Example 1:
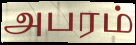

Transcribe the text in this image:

அபரம்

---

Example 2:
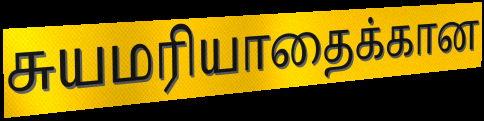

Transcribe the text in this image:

சுயமரியாதைக்கான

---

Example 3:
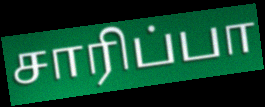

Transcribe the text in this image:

சாரிப்பா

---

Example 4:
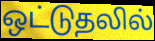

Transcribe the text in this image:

ஒட்டுதலில்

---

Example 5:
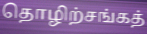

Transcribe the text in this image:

தொழிற்சங்கத்